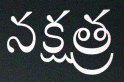
నక్షత్ర